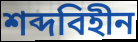
শব্দবিহীন